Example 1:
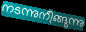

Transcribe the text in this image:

നടന്നുനീങ്ങുന്നു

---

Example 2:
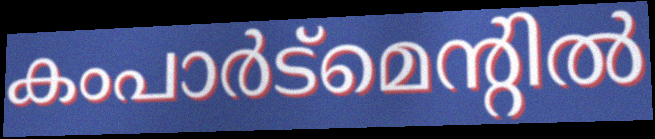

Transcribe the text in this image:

കംപാർട്മെന്റിൽ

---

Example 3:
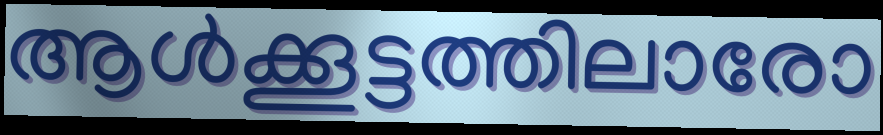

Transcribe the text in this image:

ആൾക്കൂട്ടത്തിലാരോ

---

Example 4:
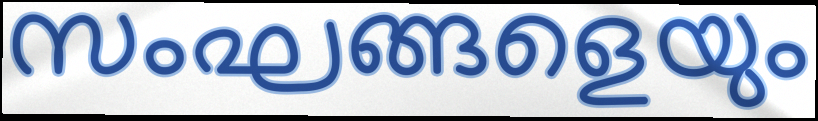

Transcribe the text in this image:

സംഘങ്ങളെയും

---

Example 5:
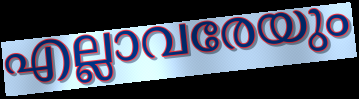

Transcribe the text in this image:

എല്ലാവരേയും